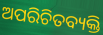
ଅପରିଚିତବ୍ୟକ୍ତି